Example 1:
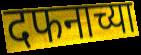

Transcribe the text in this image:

दफनाच्या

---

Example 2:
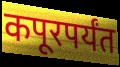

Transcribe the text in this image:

कपूरपर्यंत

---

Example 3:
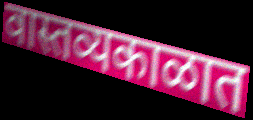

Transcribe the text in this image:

वास्तव्यकाळात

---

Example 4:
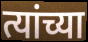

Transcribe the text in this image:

त्यांच्या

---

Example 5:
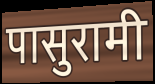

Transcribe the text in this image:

पासुरामी